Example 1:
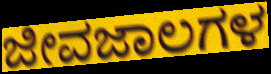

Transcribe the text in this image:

ಜೀವಜಾಲಗಳ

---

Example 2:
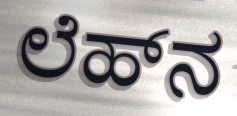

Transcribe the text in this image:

ಲೆಹ್‌ನ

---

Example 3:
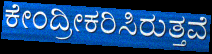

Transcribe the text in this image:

ಕೇಂದ್ರೀಕರಿಸಿರುತ್ತವೆ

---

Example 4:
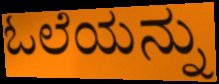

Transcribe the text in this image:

ಓಲೆಯನ್ನು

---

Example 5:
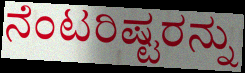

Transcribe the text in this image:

ನೆಂಟರಿಷ್ಟರನ್ನು